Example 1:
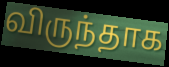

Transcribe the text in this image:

விருந்தாக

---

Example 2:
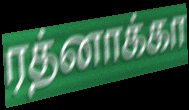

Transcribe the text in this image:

ரத்னாக்கா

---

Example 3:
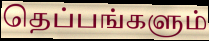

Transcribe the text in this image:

தெப்பங்களும்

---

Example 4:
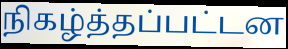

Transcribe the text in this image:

நிகழ்த்தப்பட்டன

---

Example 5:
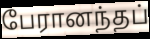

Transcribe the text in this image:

பேரானந்தப்